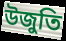
উজুতি